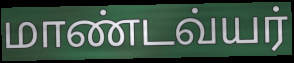
மாண்டவ்யர்